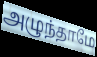
அழுந்தாமே